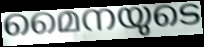
മൈനയുടെ